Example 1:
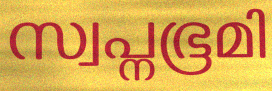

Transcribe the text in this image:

സ്വപ്നഭൂമി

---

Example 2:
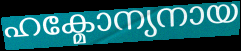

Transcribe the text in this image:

ഹക്മോന്യനായ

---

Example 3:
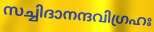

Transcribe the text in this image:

സച്ചിദാനന്ദവിഗ്രഹഃ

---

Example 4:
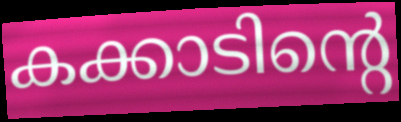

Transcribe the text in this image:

കക്കാടിന്റെ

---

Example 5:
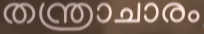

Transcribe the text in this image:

തന്ത്രാചാരം